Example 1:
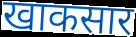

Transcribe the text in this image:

खाकसार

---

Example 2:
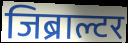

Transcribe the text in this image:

जिब्राल्टर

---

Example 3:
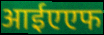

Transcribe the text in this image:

आईएएफ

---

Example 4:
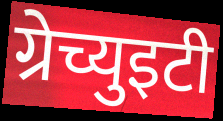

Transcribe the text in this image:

ग्रेच्युइटी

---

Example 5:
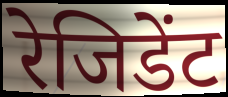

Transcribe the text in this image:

रेजिडेंट